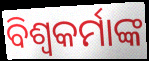
ବିଶ୍ୱକର୍ମାଙ୍କ